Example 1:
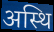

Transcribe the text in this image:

अस्थि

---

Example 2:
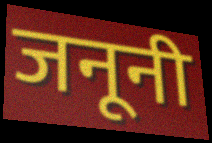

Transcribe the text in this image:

जनूनी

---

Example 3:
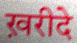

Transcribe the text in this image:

ख़रीदे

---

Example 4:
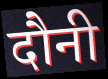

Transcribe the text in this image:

दौनी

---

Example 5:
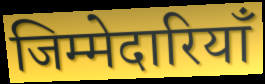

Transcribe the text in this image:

जिम्मेदारियॉं